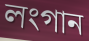
লংগান